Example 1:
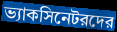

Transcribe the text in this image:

ভ্যাকসিনেটরদের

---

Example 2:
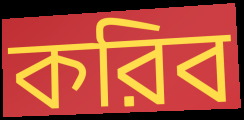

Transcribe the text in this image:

করিব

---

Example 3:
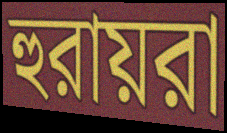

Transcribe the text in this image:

হুরায়রা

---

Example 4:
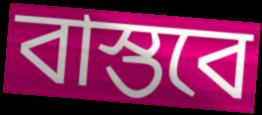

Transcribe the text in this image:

বাস্তবে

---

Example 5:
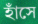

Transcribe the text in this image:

হাঁসে